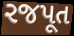
રજપૂત